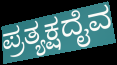
ಪ್ರತ್ಯಕ್ಷದೈವ